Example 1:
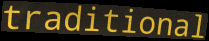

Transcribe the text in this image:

traditional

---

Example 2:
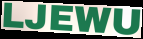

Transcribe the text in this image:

LJEWU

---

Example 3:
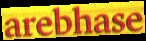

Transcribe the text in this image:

arebhase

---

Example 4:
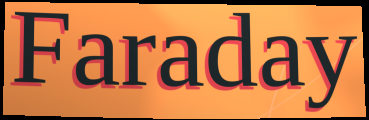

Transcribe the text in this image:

Faraday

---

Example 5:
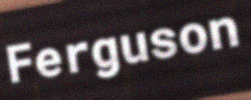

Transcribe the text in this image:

Ferguson